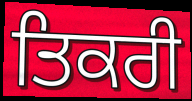
ਤਿਕਰੀ